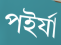
পইর্যা